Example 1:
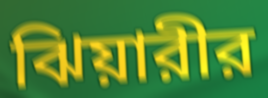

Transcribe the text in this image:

ঝিয়ারীর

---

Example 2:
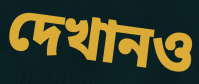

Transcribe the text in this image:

দেখানও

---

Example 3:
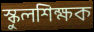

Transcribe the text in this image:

স্কুলশিক্ষক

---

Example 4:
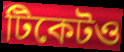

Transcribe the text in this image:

টিকেটও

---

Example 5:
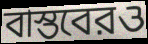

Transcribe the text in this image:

বাস্তবেরও